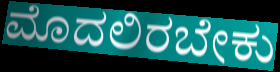
ಮೊದಲಿರಬೇಕು